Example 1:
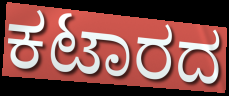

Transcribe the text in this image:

ಕಟಾರದ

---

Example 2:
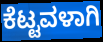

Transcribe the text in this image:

ಕೆಟ್ಟವಳಾಗಿ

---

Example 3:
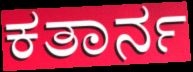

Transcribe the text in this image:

ಕತಾರ್ನ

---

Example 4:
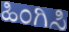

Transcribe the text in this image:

ಹಿಂಗಿಸಿ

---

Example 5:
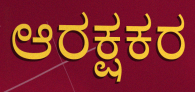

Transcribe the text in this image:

ಆರಕ್ಷಕರ